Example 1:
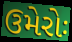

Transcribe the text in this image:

ઉમેરોઃ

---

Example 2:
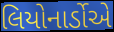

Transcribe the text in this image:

લિયોનાર્ડોએ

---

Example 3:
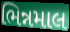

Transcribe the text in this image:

ભિન્નમાલ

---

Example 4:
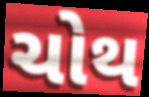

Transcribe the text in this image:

ચોથ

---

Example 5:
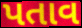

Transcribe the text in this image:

પતાવ